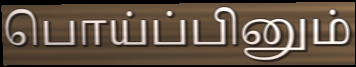
பொய்ப்பினும்